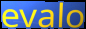
evalo